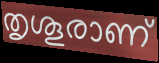
തൃശൂരാണ്